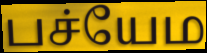
பச்யேம